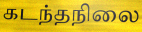
கடந்தநிலை